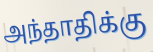
அந்தாதிக்கு